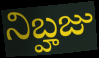
నిబ్హజు